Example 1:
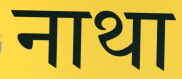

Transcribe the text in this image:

नाथा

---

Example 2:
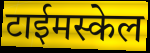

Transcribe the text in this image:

टाईमस्केल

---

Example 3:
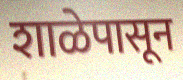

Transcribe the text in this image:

शाळेपासून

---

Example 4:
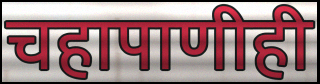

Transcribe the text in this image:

चहापाणीही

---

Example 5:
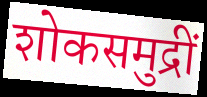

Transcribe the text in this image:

शोकसमुद्रीं